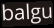
balgu